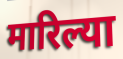
मारिल्या